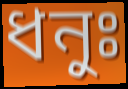
ধনুঃ